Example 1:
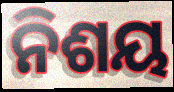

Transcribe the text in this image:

ନିଶୟ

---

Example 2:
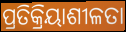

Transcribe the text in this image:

ପ୍ରତିକ୍ରିୟାଶୀଳତା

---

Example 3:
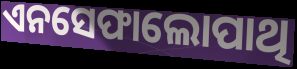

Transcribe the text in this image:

ଏନସେଫାଲୋପାଥି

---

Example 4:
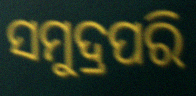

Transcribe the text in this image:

ସମୁଦ୍ରପରି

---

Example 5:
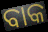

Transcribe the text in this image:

ବାକ